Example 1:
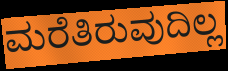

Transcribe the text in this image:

ಮರೆತಿರುವುದಿಲ್ಲ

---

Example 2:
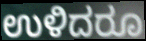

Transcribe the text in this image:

ಉಳಿದರೂ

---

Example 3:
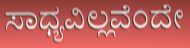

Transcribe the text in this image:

ಸಾಧ್ಯವಿಲ್ಲವೆಂದೇ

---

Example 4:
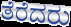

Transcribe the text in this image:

ತೆರೆದರು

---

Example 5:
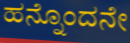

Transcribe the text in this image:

ಹನ್ನೊಂದನೇ